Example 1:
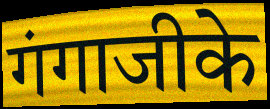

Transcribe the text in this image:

गंगाजीके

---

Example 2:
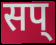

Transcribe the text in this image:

सप्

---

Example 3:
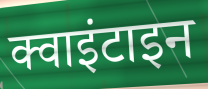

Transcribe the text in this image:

क्वाइंटाइन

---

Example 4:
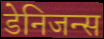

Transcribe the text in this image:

डेनिजन्स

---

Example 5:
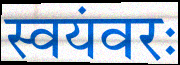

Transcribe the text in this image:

स्वयंवरः